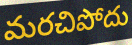
మరచిపోదు